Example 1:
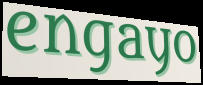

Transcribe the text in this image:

engayo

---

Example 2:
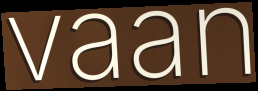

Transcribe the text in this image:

vaan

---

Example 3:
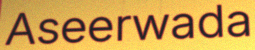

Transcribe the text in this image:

Aseerwada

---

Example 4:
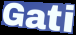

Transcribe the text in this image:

Gati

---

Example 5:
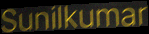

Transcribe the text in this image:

Sunilkumar